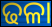
ଢଳା